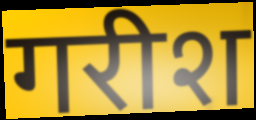
गरीश